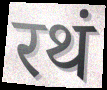
रथं